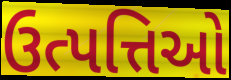
ઉત્પત્તિઓ